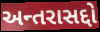
અન્તરાસદ્દો